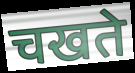
चखते